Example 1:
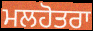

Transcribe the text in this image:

ਮਲਹੋਤਰਾ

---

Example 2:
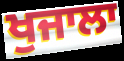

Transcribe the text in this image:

ਖੁਜਾਲਾ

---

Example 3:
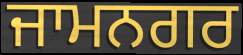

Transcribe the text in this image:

ਜਾਮਨਗਰ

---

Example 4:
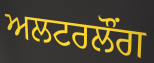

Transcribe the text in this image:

ਅਲਟਰਲੌਂਗ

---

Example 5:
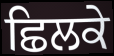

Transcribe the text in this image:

ਛਿਲਕੇ